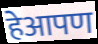
हेआपण